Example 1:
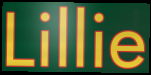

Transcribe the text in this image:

Lillie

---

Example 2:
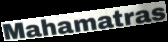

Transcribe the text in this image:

Mahamatras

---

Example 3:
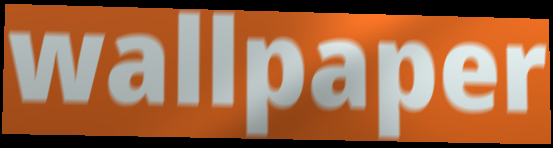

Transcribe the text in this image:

wallpaper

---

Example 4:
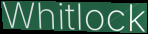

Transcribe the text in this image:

Whitlock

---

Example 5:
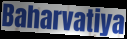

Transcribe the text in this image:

Baharvatiya